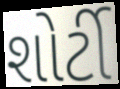
શોર્ટી